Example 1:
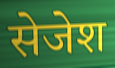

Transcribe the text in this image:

सेजेश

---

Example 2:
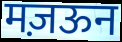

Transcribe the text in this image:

मज़ऊन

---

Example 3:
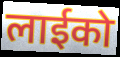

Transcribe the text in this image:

लाईको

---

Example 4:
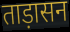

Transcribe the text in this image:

ताड़ासन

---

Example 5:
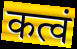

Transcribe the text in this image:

कत्वं